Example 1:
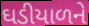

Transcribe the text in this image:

ઘડીયાળને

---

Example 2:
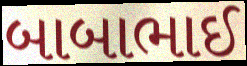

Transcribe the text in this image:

બાબાભાઈ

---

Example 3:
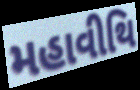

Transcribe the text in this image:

મહાવીથિ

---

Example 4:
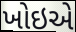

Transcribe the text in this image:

ખોઇએ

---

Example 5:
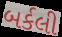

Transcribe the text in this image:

બર્કલી